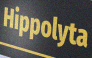
Hippolyta